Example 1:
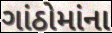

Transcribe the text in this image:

ગાંઠોમાંના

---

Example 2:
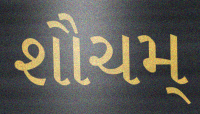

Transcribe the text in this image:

શૌચમ્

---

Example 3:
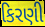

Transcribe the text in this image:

કિરણી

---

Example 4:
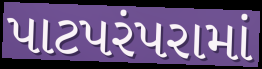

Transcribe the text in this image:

પાટપરંપરામાં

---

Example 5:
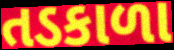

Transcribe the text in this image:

તડકાળા